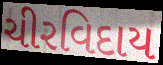
ચીરવિદાય